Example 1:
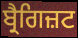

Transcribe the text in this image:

ਬ੍ਰੈਗਿਜ਼ਟ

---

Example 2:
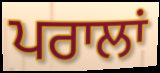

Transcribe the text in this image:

ਪਰਾਲਾਂ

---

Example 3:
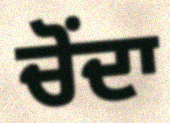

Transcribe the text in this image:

ਚੋਂਦਾ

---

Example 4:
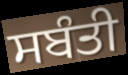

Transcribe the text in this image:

ਸਬੰਤੀ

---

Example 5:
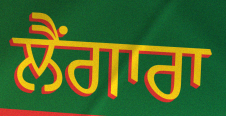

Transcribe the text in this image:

ਲੈਂਗਾਰਾ